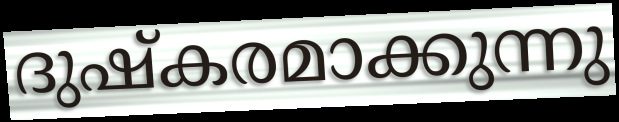
ദുഷ്കരമാക്കുന്നു